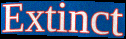
Extinct